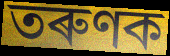
তৰুণক